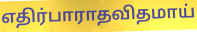
எதிர்பாராதவிதமாய்